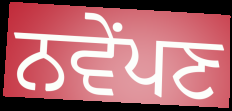
ਨਵੇਂਪਣ